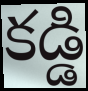
కడ్డి